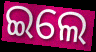
ଇଲେ